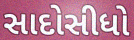
સાદોસીધો